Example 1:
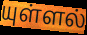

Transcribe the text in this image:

யுள்ளல்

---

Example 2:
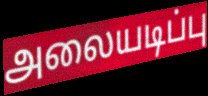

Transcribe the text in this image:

அலையடிப்பு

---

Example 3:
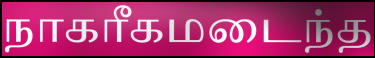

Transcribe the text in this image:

நாகரீகமடைந்த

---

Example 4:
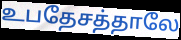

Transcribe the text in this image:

உபதேசத்தாலே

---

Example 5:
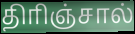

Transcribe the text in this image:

திரிஞ்சால்